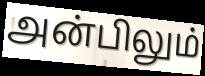
அன்பிலும்